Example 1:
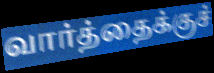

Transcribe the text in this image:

வார்த்தைக்குச்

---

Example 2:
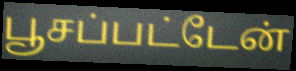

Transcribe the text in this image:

பூசப்பட்டேன்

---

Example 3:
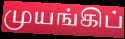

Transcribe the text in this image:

முயங்கிப்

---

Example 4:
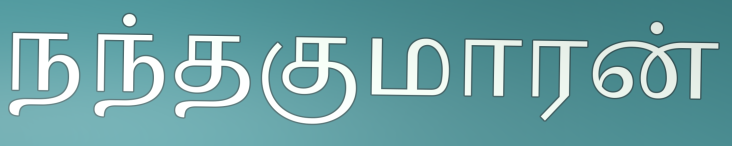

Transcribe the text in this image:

நந்தகுமாரன்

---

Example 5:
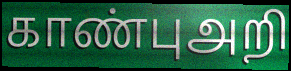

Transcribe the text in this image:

காண்புஅறி